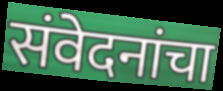
संवेदनांचा